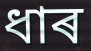
ধাৰ